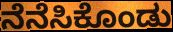
ನೆನೆಸಿಕೊಂಡು